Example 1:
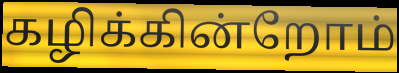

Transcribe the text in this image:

கழிக்கின்றோம்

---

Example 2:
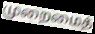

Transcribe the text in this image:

முறைமைத்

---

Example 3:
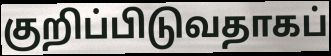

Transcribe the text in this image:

குறிப்பிடுவதாகப்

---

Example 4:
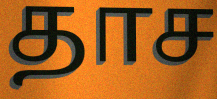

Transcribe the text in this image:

தாச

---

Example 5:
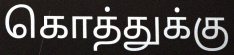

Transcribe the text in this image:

கொத்துக்கு